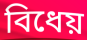
বিধেয়